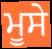
ਮੂਸੇ